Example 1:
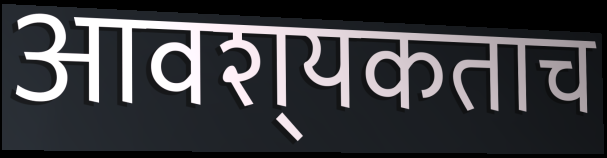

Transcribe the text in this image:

आवश्यकताच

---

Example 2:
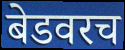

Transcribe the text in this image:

बेडवरच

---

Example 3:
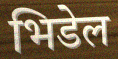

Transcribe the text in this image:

भिडेल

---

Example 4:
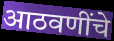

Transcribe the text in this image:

आठवणींचे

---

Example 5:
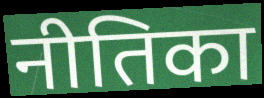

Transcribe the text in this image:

नीतिका